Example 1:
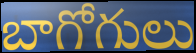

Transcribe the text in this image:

బాగోగులు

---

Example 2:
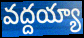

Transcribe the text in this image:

వద్దయ్యా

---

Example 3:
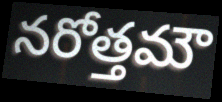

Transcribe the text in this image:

నరోత్తమౌ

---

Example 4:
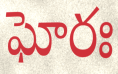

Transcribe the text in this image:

ఘోరః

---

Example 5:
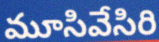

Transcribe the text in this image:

మూసివేసిరి